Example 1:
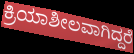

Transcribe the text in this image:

ಕ್ರಿಯಾಶೀಲವಾಗಿದ್ದರೆ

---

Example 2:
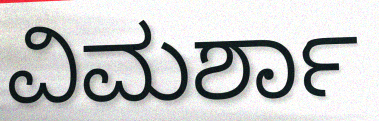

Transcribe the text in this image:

ವಿಮರ್ಶಾ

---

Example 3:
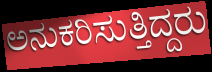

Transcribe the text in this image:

ಅನುಕರಿಸುತ್ತಿದ್ದರು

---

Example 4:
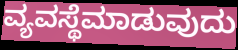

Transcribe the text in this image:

ವ್ಯವಸ್ಥೆಮಾಡುವುದು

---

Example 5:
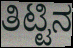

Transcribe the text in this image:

ತಿಟ್ಟಿನ